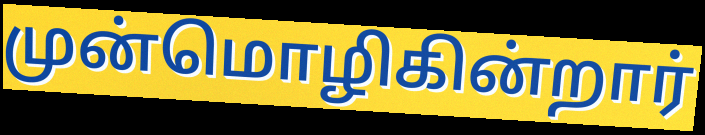
முன்மொழிகின்றார்